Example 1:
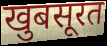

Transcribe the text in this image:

खुबसूरत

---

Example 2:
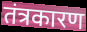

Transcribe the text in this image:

तंत्रकारण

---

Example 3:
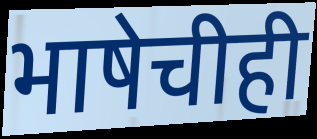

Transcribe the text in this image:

भाषेचीही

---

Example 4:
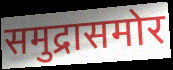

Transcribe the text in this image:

समुद्रासमोर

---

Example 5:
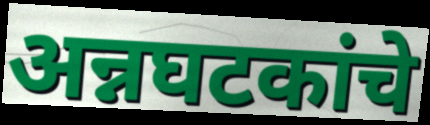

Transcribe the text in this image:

अन्नघटकांचे